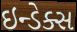
ઇન્ડેક્સ